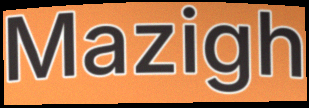
Mazigh